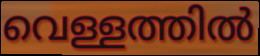
വെള്ളത്തിൽ